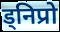
ड्निप्रो